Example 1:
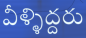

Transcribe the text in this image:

వీళ్ళిద్దరు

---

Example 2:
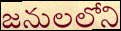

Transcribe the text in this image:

జనులలోని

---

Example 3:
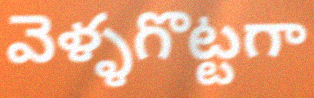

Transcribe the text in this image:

వెళ్ళగొట్టగా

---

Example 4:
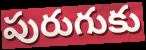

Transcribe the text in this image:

పురుగుకు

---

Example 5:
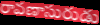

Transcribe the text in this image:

రావణాసురుడు